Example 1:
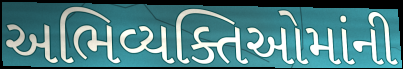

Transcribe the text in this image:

અભિવ્યક્તિઓમાંની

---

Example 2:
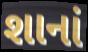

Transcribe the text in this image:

શાનાં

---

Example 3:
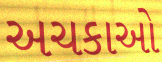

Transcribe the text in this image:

અચકાઓ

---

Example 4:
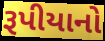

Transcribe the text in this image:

રૂપીયાનો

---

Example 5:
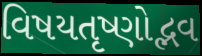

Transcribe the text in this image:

વિષયતૃષ્ણોદ્ભવ